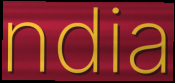
ndia